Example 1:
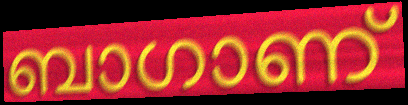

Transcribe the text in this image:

ബാഗാണ്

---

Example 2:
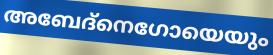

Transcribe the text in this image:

അബേദ്നെഗോയെയും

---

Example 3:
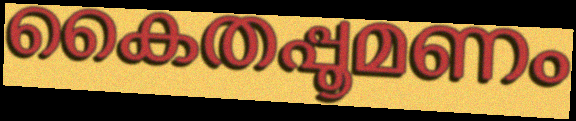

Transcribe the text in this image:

കൈതപ്പൂമണം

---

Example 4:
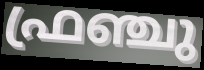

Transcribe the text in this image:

ഫ്രഞ്ചു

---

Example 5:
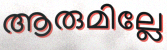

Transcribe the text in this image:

ആരുമില്ലേ